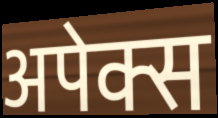
अपेक्स